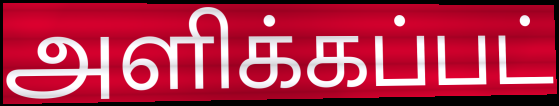
அளிக்கப்பட்